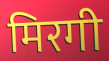
मिरगी